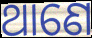
ଥାଣେ